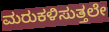
ಮರುಕಳಿಸುತ್ತಲೇ